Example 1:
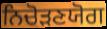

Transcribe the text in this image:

ਨਿਚੋੜਣਯੋਗ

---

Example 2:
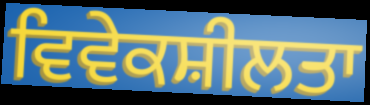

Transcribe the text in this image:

ਵਿਵੇਕਸ਼ੀਲਤਾ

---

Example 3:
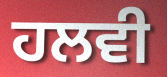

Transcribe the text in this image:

ਹਲਵੀ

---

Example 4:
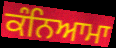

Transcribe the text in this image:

ਕੰਨਿਆਮਾ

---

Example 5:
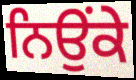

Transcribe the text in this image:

ਨਿਉਂਕੇ